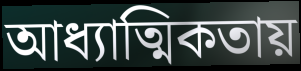
আধ্যাত্মিকতায়